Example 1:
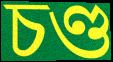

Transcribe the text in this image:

চণ্ড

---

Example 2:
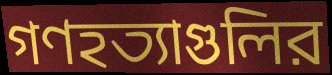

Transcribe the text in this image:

গণহত্যাগুলির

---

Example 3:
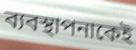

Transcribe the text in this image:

ব্যবস্থাপনাকেই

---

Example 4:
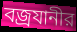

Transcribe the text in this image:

বজ্রযানীর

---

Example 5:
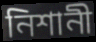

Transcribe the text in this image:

নিশানী